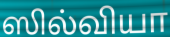
ஸில்வியா